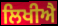
ਲਿਖੀਐ